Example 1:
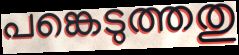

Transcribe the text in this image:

പങ്കെടുത്തതു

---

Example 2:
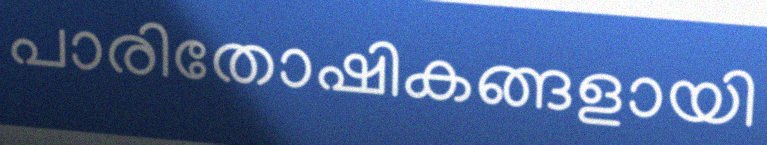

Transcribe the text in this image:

പാരിതോഷികങ്ങളായി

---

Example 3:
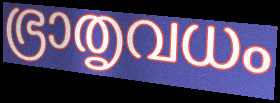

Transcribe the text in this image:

ഭ്രാതൃവധം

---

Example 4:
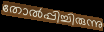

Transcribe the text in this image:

തോൽപ്പിച്ചിരുന്നു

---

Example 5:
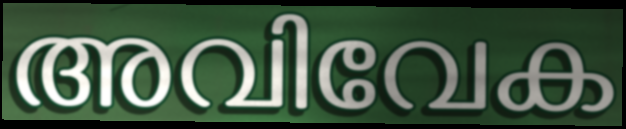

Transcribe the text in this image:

അവിവേക